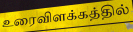
உரைவிளக்கத்தில்